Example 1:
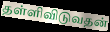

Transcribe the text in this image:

தள்ளிவிடுவதன்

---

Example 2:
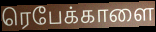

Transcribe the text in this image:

ரெபேக்காளை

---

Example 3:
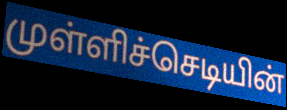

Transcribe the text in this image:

முள்ளிச்செடியின்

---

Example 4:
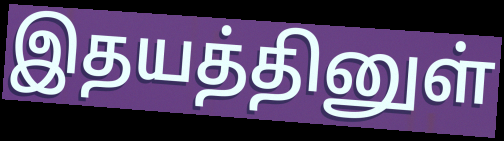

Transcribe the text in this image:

இதயத்தினுள்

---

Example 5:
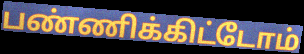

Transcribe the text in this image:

பண்ணிக்கிட்டோம்